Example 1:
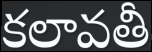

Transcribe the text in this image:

కలావతీ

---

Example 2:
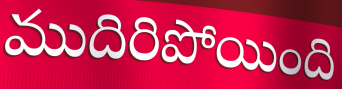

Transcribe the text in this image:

ముదిరిపోయింది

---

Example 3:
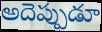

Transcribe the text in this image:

అదెప్పుడూ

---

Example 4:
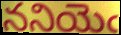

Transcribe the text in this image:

ననియెఁ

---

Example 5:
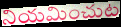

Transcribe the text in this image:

నియమించుట